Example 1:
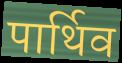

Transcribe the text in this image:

पार्थिव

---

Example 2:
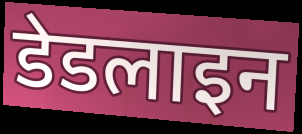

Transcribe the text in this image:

डेडलाइन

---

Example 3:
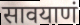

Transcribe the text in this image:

सावयाणं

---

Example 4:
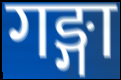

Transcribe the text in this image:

गङ्गा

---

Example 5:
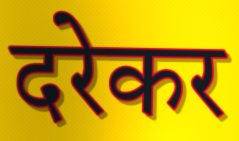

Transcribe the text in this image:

दरेकर